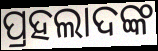
ପ୍ରହଲାଦଙ୍କ